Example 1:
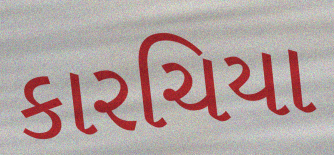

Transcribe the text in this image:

કારચિયા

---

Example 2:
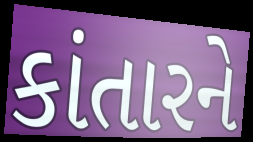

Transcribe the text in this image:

કાંતારને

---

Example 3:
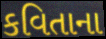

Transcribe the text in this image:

કવિતાના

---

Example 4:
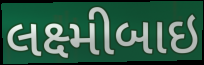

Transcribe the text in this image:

લક્ષ્મીબાઇ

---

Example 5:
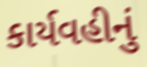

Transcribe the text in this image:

કાર્યવહીનું